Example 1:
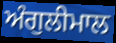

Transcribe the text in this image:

ਅੰਗੁਲੀਮਾਲ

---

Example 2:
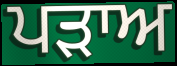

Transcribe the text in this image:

ਪਡ਼ਾਅ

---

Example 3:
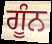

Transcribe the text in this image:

ਗੂੰਨ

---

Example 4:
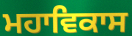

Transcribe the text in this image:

ਮਹਾਵਿਕਾਸ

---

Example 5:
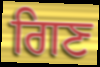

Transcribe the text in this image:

ਗਿਣ